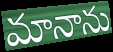
మానాను